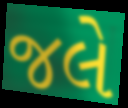
જલે